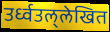
उर्ध्वउल्लेखित